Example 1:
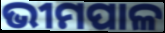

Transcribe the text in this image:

ଭୀମପାଳ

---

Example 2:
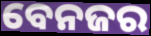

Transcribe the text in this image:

ବେନଜର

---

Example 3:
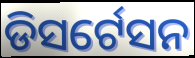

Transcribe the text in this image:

ଡିସର୍ଟେସନ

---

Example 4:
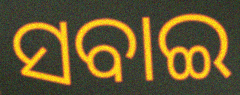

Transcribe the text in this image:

ସବାଇ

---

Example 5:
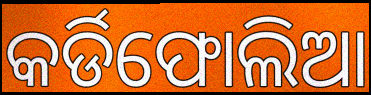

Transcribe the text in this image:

କର୍ଡିଫୋଲିଆ